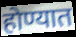
होण्यात